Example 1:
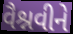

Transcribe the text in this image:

વૈશ્નવીને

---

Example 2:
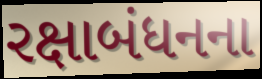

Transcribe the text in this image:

રક્ષાબંધનના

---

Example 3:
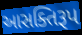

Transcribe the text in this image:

આસક્તિરૂપ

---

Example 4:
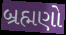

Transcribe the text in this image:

બ્રહ્મણો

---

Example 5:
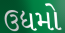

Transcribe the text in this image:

ઉદ્યમો